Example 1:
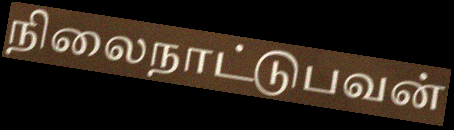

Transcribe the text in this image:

நிலைநாட்டுபவன்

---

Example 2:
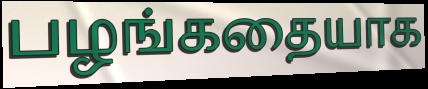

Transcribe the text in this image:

பழங்கதையாக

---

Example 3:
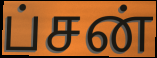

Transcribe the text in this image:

ப்சன்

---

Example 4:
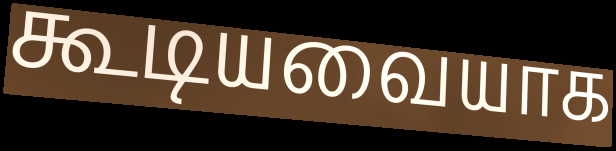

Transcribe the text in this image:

கூடியவையாக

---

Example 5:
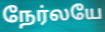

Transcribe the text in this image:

நேர்லயே